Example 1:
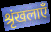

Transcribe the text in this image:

श्रृंखलाएँ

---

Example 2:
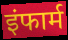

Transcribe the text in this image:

इंफार्म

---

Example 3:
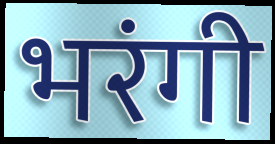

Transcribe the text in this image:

भरंगी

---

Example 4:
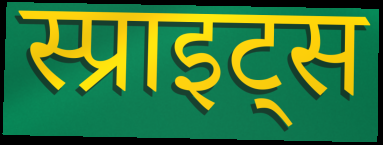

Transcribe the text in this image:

स्प्राइट्स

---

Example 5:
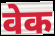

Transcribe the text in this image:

वेक